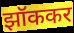
झॉककर